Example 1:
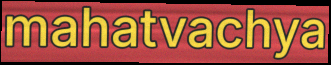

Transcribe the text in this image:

mahatvachya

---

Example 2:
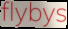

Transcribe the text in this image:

flybys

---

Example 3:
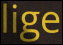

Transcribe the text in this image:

lige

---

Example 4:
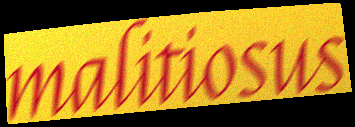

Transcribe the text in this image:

malitiosus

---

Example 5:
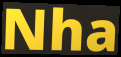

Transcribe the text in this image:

Nha